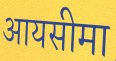
आयसीमा